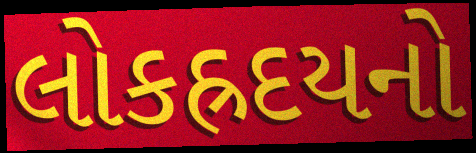
લોકહ્રદયનો